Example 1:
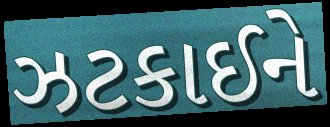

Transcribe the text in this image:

ઝટકાઈને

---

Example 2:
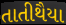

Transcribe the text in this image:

તાતીથૈયા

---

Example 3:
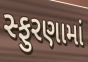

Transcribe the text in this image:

સ્ફુરણામાં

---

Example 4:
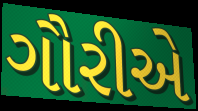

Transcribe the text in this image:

ગૌરીએ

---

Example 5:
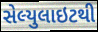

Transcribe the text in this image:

સેલ્યુલાઇટથી